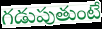
గడుపుతుంటే